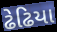
ઢેઢિયા